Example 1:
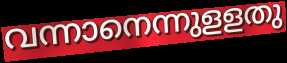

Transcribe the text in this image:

വന്നാനെന്നുളളതു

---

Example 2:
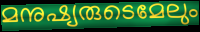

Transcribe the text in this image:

മനുഷ്യരുടെമേലും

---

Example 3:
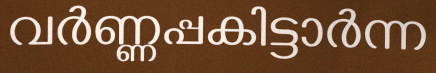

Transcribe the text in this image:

വർണ്ണപ്പകിട്ടാർന്ന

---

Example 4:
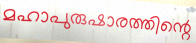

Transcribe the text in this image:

മഹാപുരുഷാരത്തിന്റെ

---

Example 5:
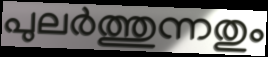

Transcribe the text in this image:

പുലർത്തുന്നതും